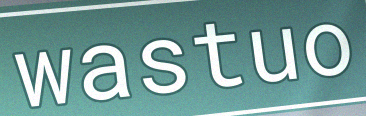
wastuo